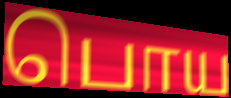
பொய